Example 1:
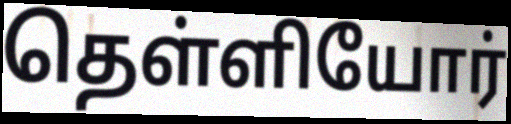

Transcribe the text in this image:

தெள்ளியோர்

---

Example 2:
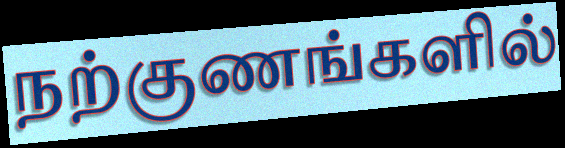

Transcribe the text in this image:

நற்குணங்களில்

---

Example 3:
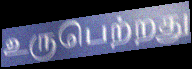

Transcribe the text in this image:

உருபெற்றது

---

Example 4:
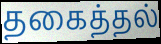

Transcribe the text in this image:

தகைத்தல்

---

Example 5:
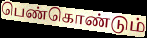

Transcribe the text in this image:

பெண்கொண்டும்